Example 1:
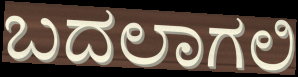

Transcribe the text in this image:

ಬದಲಾಗಲಿ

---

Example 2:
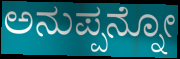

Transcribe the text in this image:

ಅನುಪ್ಪನ್ನೋ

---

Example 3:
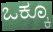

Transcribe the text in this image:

ಒಕ್ಕೂ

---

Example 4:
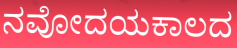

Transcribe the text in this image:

ನವೋದಯಕಾಲದ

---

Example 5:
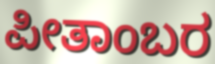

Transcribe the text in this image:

ಪೀತಾಂಬರ